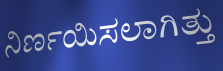
ನಿರ್ಣಯಿಸಲಾಗಿತ್ತು